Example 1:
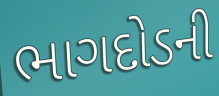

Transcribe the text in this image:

ભાગદોડની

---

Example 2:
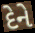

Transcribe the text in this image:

દેને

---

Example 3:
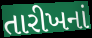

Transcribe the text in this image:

તારીખનાં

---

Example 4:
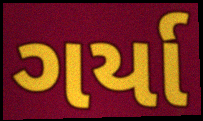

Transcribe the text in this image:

ગર્યા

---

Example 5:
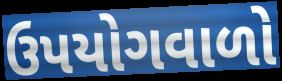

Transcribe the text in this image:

ઉપયોગવાળો